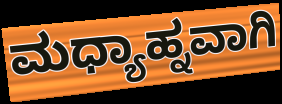
ಮಧ್ಯಾಹ್ನವಾಗಿ